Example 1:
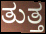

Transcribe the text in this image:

ತುತ್ತ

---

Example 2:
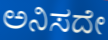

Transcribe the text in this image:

ಅನಿಸದೇ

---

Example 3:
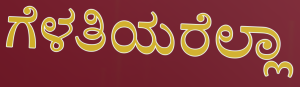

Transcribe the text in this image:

ಗೆಳತಿಯರೆಲ್ಲಾ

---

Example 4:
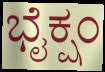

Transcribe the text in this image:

ಭೈಕ್ಷಂ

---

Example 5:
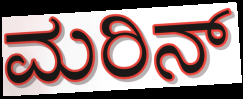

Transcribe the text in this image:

ಮರಿನ್